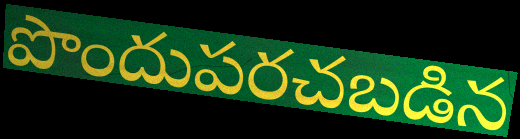
పొందుపరచబడిన